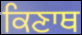
ਕਿਣਾਥ